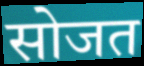
सोजत